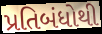
પ્રતિબંધોથી